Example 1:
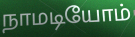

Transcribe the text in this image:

நாமடியோம்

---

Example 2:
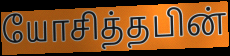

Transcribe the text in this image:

யோசித்தபின்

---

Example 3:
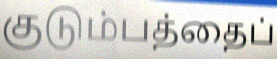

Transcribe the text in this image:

குடும்பத்தைப்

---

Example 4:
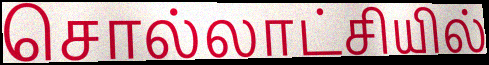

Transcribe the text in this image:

சொல்லாட்சியில்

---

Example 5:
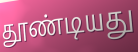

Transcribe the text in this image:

தூண்டியது